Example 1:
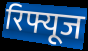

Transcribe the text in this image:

रिफ्यूज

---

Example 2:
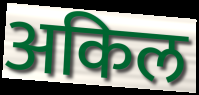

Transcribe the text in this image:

अकिल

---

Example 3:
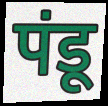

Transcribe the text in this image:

पंडू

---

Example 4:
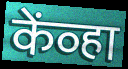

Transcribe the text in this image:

केंव्हा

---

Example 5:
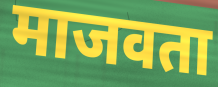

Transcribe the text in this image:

माजवता